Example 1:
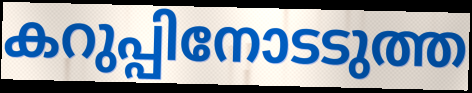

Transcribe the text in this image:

കറുപ്പിനോടടുത്ത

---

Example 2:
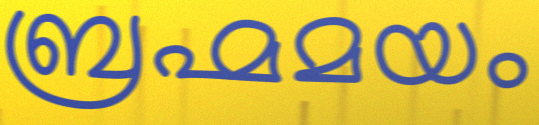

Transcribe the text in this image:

ബ്രഹ്മമയം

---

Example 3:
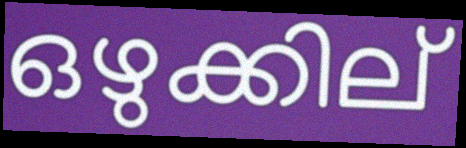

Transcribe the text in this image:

ഒഴുക്കില്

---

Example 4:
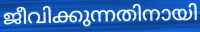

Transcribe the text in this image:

ജീവിക്കുന്നതിനായി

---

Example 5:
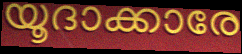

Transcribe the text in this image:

യൂദാക്കാരേ